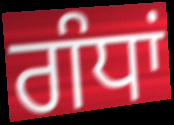
ਗੰਧਾਂ